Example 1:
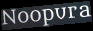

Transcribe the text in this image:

Noopura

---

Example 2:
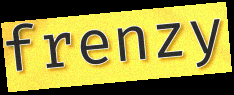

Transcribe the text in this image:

frenzy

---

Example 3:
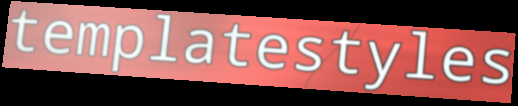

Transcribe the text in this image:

templatestyles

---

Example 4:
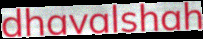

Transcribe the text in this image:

dhavalshah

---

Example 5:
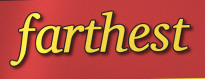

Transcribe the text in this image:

farthest